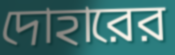
দোহারের